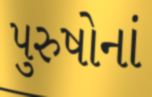
પુરુષોનાં